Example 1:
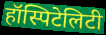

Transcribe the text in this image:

हॉस्पिटेलिटी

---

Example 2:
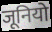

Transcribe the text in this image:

जूनियो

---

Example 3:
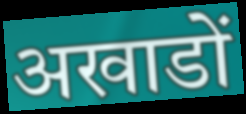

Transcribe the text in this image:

अखाडों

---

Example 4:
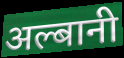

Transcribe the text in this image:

अल्बानी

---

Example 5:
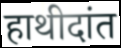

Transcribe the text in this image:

हाथीदांत